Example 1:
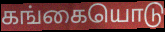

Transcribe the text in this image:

கங்கையொடு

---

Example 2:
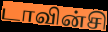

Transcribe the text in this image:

டாவின்சி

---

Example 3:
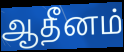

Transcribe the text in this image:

ஆதீனம்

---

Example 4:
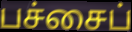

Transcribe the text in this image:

பச்சைப்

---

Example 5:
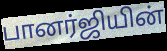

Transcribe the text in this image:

பானர்ஜியின்